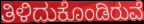
ತಿಳಿದುಕೊಂಡಿರುವೆ